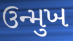
ઉન્મુખ